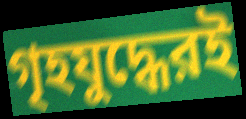
গৃহযুদ্ধেরই